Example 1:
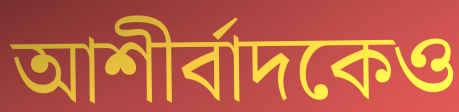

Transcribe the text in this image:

আশীর্বাদকেও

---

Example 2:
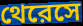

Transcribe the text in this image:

থেরেসে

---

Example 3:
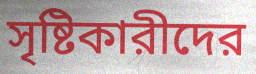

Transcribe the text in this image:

সৃষ্টিকারীদের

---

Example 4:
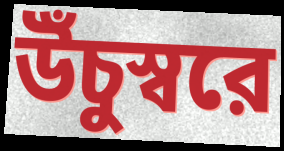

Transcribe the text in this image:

উঁচুস্বরে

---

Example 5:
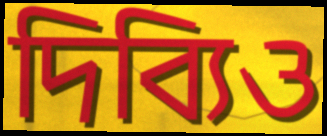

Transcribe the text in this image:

দিব্যিও